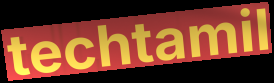
techtamil